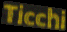
Ticchi